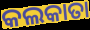
କଲକାତା